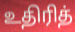
உதிரித்